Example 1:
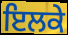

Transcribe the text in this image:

ਇਲਕੇ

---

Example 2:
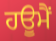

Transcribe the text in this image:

ਹਊਮੈਂ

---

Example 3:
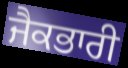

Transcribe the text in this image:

ਜੈਕਭਾਰੀ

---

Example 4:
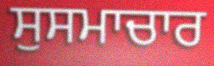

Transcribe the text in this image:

ਸੁਸਮਾਚਾਰ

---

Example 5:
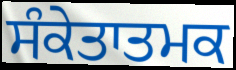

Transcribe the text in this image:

ਸੰਕੇਤਾਤਮਕ